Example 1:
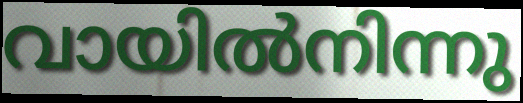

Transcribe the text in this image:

വായിൽനിന്നു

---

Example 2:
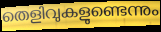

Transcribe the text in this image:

തെളിവുകളുണ്ടെന്നും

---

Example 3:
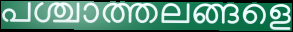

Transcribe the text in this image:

പശ്ചാത്തലങ്ങളെ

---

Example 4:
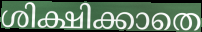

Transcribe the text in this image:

ശിക്ഷിക്കാതെ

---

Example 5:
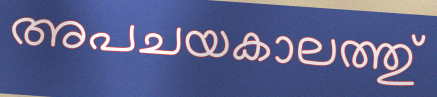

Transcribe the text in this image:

അപചയകാലത്തു്